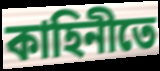
কাহিনীতে